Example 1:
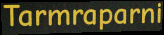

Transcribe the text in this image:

Tarmraparni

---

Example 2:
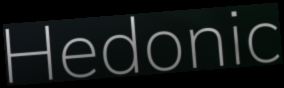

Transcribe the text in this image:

Hedonic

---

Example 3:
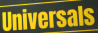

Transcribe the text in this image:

Universals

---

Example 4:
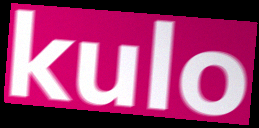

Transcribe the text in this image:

kulo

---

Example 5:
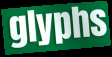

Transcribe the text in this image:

glyphs